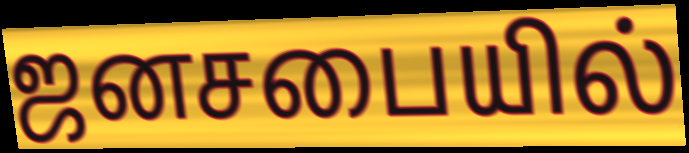
ஜனசபையில்